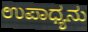
ಉಪಾಧ್ಯನು